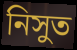
নিসুত